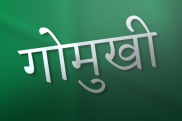
गोमुखी